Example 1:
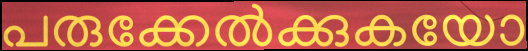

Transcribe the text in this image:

പരുക്കേൽക്കുകയോ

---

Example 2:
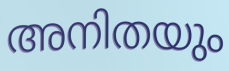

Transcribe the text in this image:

അനിതയും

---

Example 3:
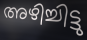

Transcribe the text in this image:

അഴിച്ചിട്ടു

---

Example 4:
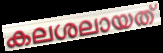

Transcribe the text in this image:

കലശലായത്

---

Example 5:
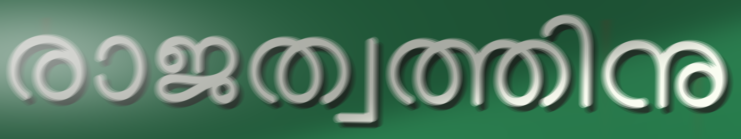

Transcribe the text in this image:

രാജത്വത്തിനു